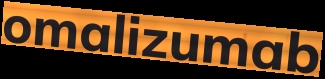
omalizumab